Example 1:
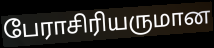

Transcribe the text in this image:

பேராசிரியருமான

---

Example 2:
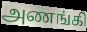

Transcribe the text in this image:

அணங்கி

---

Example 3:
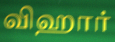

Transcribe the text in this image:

விஹார்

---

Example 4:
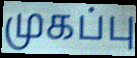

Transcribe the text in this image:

முகப்பு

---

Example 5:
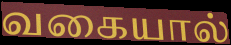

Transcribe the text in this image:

வகையால்